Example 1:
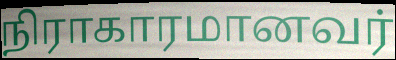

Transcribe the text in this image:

நிராகாரமானவர்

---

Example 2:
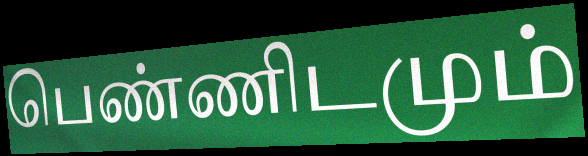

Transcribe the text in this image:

பெண்ணிடமும்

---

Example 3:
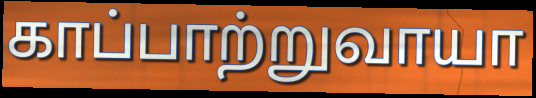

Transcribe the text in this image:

காப்பாற்றுவாயா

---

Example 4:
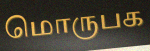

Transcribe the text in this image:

மொருபக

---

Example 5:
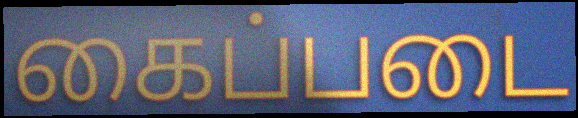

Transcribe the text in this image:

கைப்படை